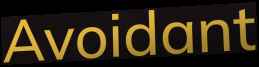
Avoidant